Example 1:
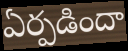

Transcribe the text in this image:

ఏర్పడిందా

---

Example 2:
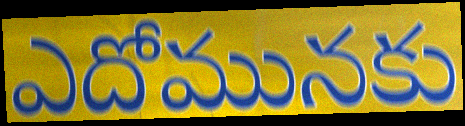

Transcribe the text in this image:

ఎదోమునకు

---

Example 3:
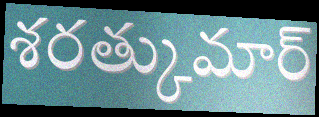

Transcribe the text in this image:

శరత్కుమార్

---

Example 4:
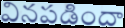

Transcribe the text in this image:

వినపడిందా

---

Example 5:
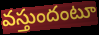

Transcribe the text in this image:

వస్తుందంటూ